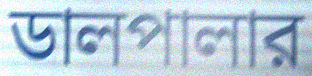
ডালপালার